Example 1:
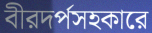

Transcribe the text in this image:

বীরদর্পসহকারে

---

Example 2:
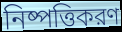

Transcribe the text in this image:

নিষ্পত্তিকরণ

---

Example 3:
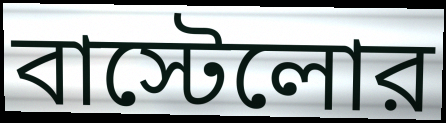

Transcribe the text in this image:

বাস্টেলোর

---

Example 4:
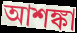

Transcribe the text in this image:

আশঙ্কা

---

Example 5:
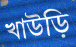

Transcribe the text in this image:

খাউড়ি